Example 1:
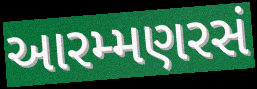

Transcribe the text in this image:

આરમ્મણરસં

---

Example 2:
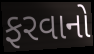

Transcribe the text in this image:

ફરવાનો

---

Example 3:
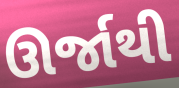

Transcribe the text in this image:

ઊર્જાથી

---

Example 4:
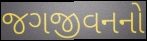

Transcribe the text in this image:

જગજીવનનો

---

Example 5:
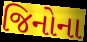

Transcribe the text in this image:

જિનોના